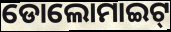
ଡୋଲୋମାଇଟ୍